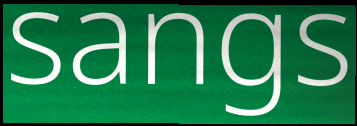
sangs